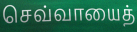
செவ்வாயைத்